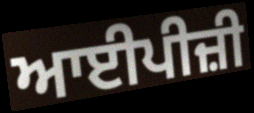
ਆਈਪੀਜ਼ੀ